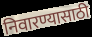
निवारण्यासाठी